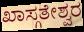
ಖಾಸ್ಗತೇಶ್ವರ